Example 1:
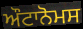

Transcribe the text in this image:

ਔਟਾਨੋਮਸ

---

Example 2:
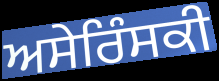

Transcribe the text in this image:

ਅਸੇਰਿੰਸਕੀ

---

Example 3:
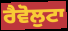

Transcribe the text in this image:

ਰੈਵੋਲੁਟਾ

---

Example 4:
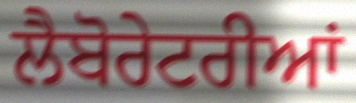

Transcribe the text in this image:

ਲੈਬੋਰੇਟਰੀਆਂ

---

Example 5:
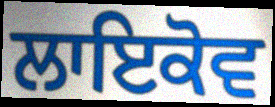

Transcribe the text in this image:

ਲਾਇਕੋਵ